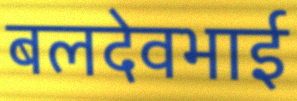
बलदेवभाई